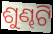
ଶୁଣ୍ଢଟି